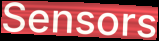
Sensors